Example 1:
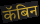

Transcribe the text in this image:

कॅबिन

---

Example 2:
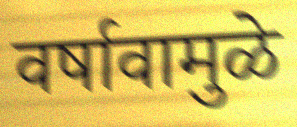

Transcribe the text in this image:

वर्षावामुळे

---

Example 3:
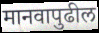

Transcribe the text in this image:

मानवापुढील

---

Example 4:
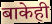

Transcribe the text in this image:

बाकेही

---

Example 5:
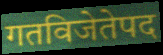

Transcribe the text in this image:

गतविजेतेपद